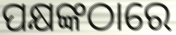
ପକ୍ଷଙ୍କଠାରେ